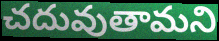
చదువుతామని